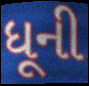
ધૂની